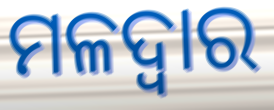
ମଳଦ୍ଵାର